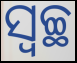
ସ୍ୱଚ୍ଛ